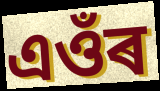
এওঁৰ